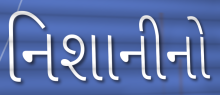
નિશાનીનો